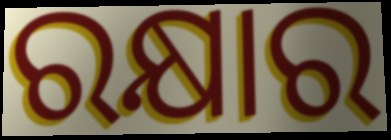
ରକ୍ଷାର